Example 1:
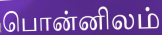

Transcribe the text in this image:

பொன்னிலம்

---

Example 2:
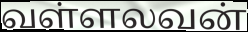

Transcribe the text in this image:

வள்ளலவன்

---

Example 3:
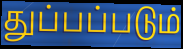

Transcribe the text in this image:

துப்பப்படும்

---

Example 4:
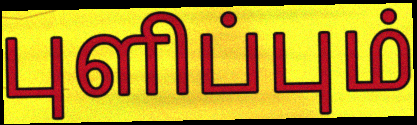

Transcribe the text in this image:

புளிப்பும்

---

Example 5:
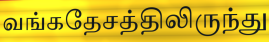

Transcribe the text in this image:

வங்கதேசத்திலிருந்து